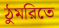
ঠুমরিতে